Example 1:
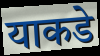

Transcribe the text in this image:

याकडे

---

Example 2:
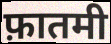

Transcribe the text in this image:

फ़ातमी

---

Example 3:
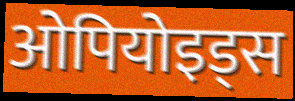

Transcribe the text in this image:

ओपियोइड्स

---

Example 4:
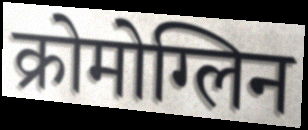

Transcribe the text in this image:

क्रोमोग्लिन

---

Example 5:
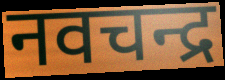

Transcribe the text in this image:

नवचन्द्र